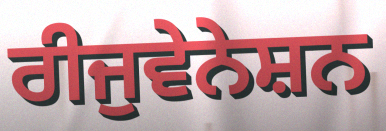
ਰੀਜੁਵੇਨੇਸ਼ਨ